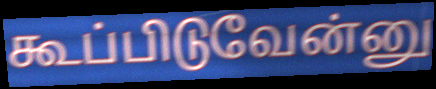
கூப்பிடுவேன்னு